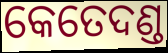
କେତେଦଣ୍ଡ